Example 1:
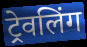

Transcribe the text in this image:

ट्रेवलिंग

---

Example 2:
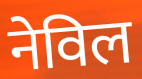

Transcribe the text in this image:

नेविल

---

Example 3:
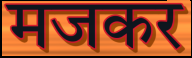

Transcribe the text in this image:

मजकर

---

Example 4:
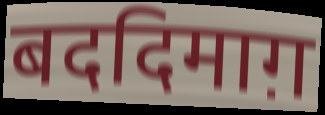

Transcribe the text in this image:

बददिमाग़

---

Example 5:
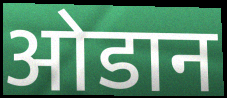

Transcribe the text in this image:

ओडान